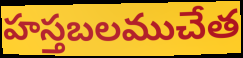
హస్తబలముచేత